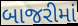
બાજરીમાં